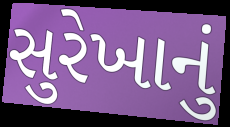
સુરેખાનું